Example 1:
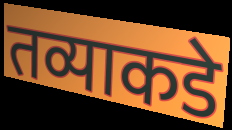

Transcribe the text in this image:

तव्याकडे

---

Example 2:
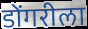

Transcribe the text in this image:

डोंगरीला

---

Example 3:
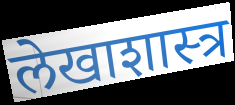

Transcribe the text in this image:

लेखाशास्त्र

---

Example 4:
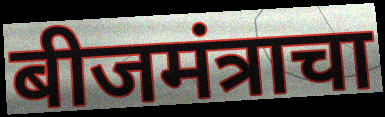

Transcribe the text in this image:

बीजमंत्राचा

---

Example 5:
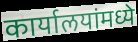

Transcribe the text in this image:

कार्यालयांमध्ये